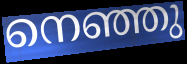
നെഞ്ഞു